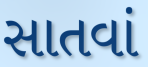
સાતવાં